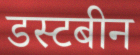
डस्टबीन